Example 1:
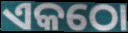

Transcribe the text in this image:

ଏକଠୋ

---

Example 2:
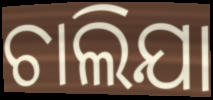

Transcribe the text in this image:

ଚାଲିଯା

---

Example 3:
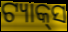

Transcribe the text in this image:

ଟ୍ୟାକ୍‌ସ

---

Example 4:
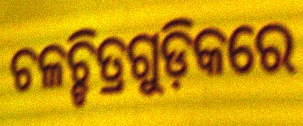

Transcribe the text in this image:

ଚଳଚ୍ଚିତ୍ରଗୁଡ଼ିକରେ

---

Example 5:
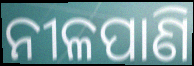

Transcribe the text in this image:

ନୀଳପାଣି